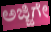
ಅಜ್ಜಿಗೇ